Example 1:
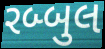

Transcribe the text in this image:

રબ્બુલ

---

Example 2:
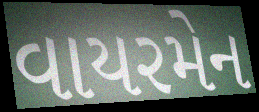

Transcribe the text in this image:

વાયરમેન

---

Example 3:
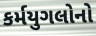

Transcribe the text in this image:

કર્મયુગલોનો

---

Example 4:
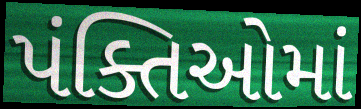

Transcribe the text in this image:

પંક્તિઓમાં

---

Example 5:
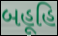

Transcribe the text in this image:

બહૂહિ